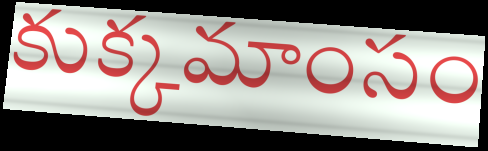
కుక్కమాంసం